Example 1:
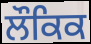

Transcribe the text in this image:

ਲੌਕਿਕ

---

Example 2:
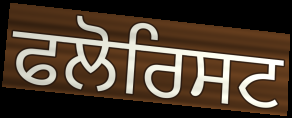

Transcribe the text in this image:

ਫਲੋਰਿਸਟ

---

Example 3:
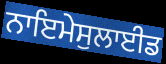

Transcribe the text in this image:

ਨਾਇਮੇਸੁਲਾਈਡ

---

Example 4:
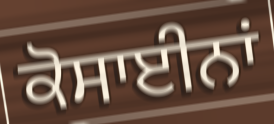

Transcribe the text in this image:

ਕੋਸਾਈਨਾਂ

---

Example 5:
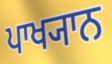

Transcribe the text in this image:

ਪਾਖ੍ਯਾਨ